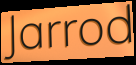
Jarrod